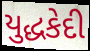
યુદ્ધકેદી